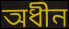
অধীন